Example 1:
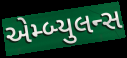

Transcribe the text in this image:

એમ્બ્યુલન્સ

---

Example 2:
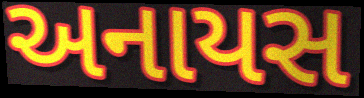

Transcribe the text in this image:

અનાયસ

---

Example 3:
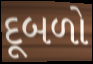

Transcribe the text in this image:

દૂબળો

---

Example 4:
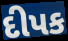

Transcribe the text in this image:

દીપક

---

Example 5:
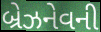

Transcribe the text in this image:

બ્રેઝનેવની